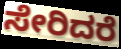
ಸೇರಿದರೆ